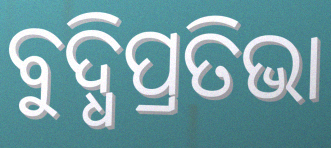
ବୁଦ୍ଧିପ୍ରତିଭା